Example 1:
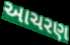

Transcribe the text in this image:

આચરણ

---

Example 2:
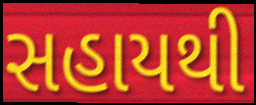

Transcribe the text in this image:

સહાયથી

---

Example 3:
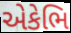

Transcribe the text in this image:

એકેભિ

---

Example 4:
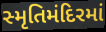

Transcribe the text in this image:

સ્મૃતિમંદિરમાં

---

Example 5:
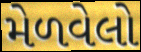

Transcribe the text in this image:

મેળવેલો